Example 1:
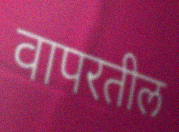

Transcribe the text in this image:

वापरतील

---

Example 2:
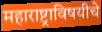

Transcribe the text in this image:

महाराष्ट्राविषयीचे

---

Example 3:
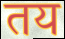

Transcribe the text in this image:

तय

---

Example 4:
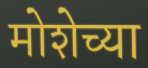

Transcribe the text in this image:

मोशेच्या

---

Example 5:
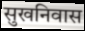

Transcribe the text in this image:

सुखनिवास